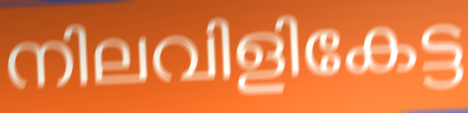
നിലവിളികേട്ട